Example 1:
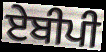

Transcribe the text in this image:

ਏਬੀਪੀ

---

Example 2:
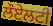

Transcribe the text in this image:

ਲੌਏਲਟੀ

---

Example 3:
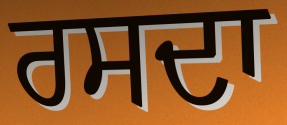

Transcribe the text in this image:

ਰਸਦਾ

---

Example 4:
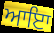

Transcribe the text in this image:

ਆਇਾ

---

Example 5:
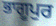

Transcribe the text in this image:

ਭਾਗੂਪੁਰ